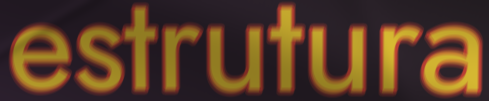
estrutura